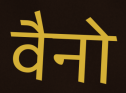
वैनो